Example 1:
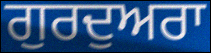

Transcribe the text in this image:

ਗੁਰਦੁਅਰਾ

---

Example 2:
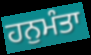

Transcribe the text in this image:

ਹਨੁਮੰਤਾ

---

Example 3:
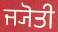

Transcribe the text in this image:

ਜ੍ਯੋਤੀ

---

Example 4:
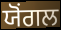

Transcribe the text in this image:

ਯੋਂਗਲ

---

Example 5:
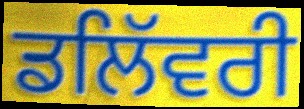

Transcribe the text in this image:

ਡਲਿੱਵਰੀ